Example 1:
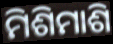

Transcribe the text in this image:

ମିଶିମାଶି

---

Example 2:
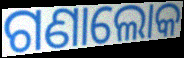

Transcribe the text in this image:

ଗଣାଲୋକ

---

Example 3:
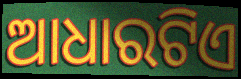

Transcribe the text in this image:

ଆଧାରଟିଏ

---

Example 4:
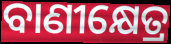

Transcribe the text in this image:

ବାଣୀକ୍ଷେତ୍ର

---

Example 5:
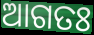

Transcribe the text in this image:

ଆଗତଃ